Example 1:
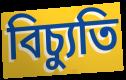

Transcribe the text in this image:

বিচ্যুতি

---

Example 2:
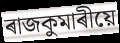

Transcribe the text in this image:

ৰাজকুমাৰীয়ে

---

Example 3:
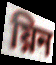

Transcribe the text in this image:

য়িন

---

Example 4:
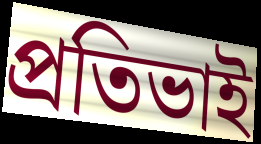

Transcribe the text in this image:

প্ৰতিভাই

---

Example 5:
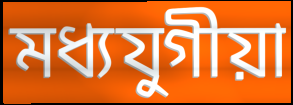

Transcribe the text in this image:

মধ্যযুগীয়া